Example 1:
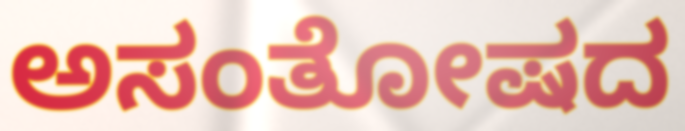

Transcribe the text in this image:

ಅಸಂತೋಷದ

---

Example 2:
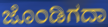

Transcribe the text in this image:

ಜೊಂಡಿಗದಾ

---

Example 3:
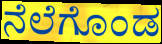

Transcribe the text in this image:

ನೆಲೆಗೊಂಡ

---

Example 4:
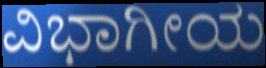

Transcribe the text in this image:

ವಿಭಾಗೀಯ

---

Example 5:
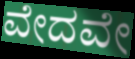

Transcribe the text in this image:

ವೇದವೇ